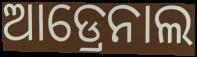
ଆଡ୍ରେନାଲ